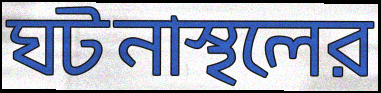
ঘটনাস্থলের